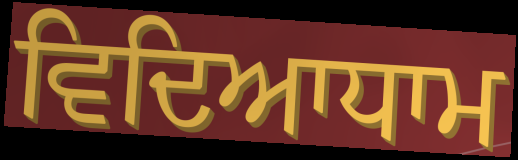
ਵਿਦਿਆਧਾਮ